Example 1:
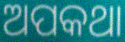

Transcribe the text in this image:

ଅପକଥା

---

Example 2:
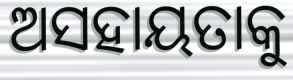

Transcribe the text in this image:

ଅସହାୟତାକୁ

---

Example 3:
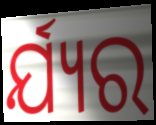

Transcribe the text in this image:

ର୍ଯ୍ୟର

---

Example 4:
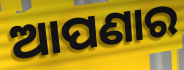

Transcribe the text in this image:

ଆପଣାର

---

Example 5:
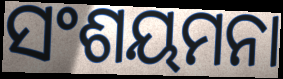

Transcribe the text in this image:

ସଂଶୟମନା